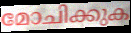
മോചിക്കുക